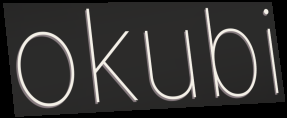
okubi